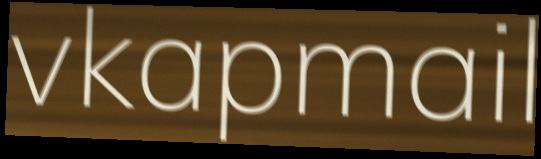
vkapmail